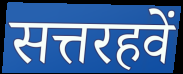
सत्तरहवें